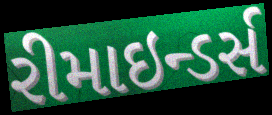
રીમાઇન્ડર્સ